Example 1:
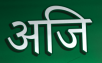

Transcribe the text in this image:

अजि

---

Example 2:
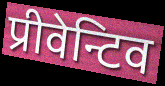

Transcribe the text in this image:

प्रीवेन्टिव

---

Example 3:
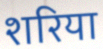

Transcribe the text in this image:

शरिया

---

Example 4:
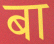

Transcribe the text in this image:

बा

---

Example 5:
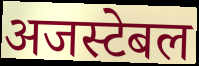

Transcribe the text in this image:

अजस्टेबल